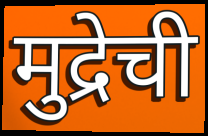
मुद्रेची